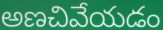
అణచివేయడం